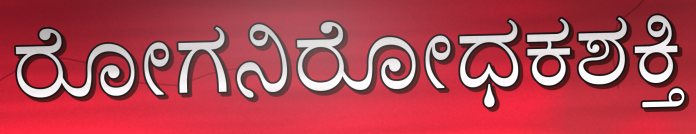
ರೋಗನಿರೋಧಕಶಕ್ತಿ